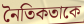
নৈতিকতাকে